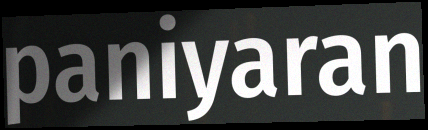
paniyaran